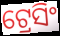
ଟ୍ରେସିଂ